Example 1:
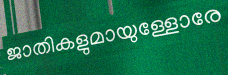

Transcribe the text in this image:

ജാതികളുമായുള്ളോരേ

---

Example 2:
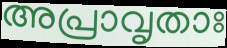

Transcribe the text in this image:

അപ്രാവൃതാഃ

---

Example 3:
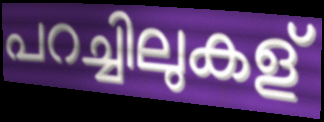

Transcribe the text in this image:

പറച്ചിലുകള്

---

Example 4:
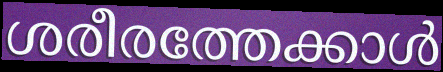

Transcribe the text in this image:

ശരീരത്തേക്കാൾ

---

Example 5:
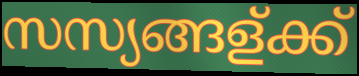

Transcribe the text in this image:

സസ്യങ്ങള്ക്ക്